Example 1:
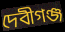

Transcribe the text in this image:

দেবীগঞ্জ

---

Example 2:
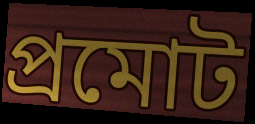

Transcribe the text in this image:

প্রমোট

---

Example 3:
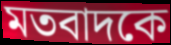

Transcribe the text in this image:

মতবাদকে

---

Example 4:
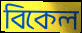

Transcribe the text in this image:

বিকেল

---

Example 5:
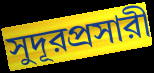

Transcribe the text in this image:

সুদূরপ্রসারী